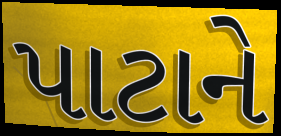
પાટાને